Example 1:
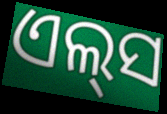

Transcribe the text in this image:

ଏଲ୍‌ସ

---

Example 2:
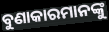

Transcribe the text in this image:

ବୁଣାକାରମାନଙ୍କୁ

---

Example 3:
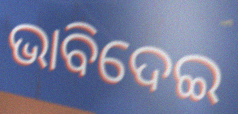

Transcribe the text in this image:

ଭାବିଦେଇ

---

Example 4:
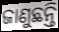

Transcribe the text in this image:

ଜାଣୁଛନ୍ତି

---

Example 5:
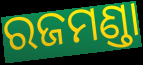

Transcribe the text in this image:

ରଜମଣ୍ଡା